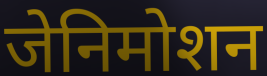
जेनिमोशन